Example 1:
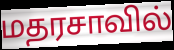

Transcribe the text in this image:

மதரசாவில்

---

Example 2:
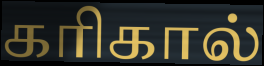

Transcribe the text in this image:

கரிகால்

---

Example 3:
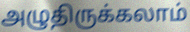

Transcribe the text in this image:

அழுதிருக்கலாம்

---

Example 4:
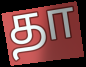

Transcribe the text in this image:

தா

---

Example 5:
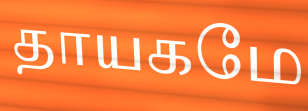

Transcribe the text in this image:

தாயகமே